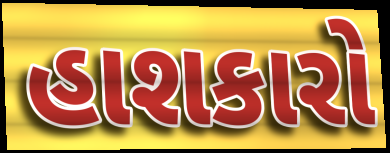
હાશકારો